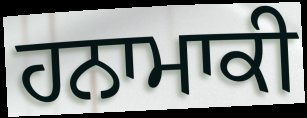
ਹਨਾਮਾਕੀ